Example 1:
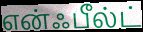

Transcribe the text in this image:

என்ஃபீல்ட்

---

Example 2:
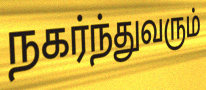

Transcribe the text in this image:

நகர்ந்துவரும்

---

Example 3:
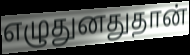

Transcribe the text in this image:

எழுதுனதுதான்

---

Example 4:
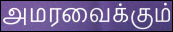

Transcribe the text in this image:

அமரவைக்கும்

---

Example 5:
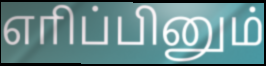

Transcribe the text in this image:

எரிப்பினும்